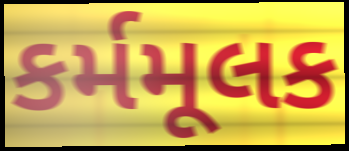
કર્મમૂલક